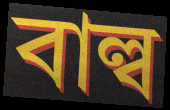
বাল্ব